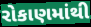
રોકાણમાંથી